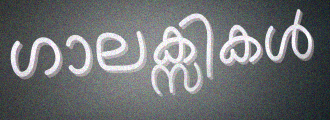
ഗാലക്സികൾ